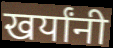
खर्यांनी